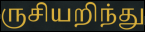
ருசியறிந்து